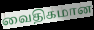
வைதிகமான